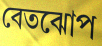
বেতঝোপ